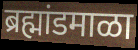
ब्रह्मांडमाळा